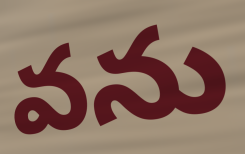
వను